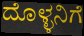
ದೊಳ್ಳನಿಗೆ